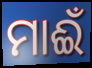
ମାଈଁ